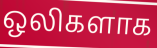
ஒலிகளாக